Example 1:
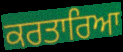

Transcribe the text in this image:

ਕਰਤਾਰਿਆ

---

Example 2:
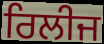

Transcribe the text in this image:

ਰਿਲੀਜ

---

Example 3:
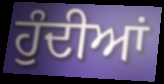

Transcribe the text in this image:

ਹੁੰਦੀਆਂ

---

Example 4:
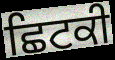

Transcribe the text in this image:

ਛਿਟਕੀ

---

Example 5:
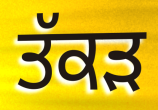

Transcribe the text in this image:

ਤੱਕੜ